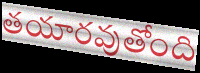
తయారవుతోంది